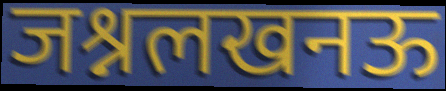
जश्नलखनऊ